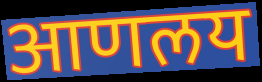
आणलय